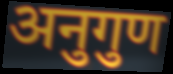
अनुगुण